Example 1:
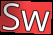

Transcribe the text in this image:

Sw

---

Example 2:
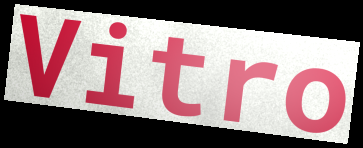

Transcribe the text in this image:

Vitro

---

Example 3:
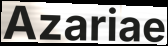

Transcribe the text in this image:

Azariae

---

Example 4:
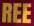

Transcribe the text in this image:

REE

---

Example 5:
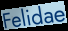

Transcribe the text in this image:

Felidae